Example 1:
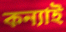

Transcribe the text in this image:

কন্যাই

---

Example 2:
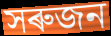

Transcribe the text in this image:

সৰুজন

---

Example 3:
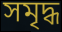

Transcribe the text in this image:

সমৃদ্ধ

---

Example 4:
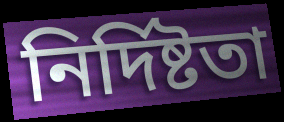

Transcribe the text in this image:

নিৰ্দিষ্টতা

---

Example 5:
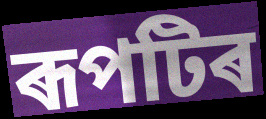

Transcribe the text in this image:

ৰূপটিৰ